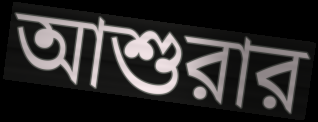
আশুরার